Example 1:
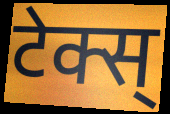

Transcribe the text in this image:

टेक्स्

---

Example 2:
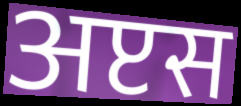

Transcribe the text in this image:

अप्टस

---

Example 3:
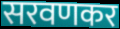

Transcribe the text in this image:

सरवणकर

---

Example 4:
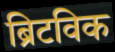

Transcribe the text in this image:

ब्रिटविक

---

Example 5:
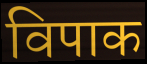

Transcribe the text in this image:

विपाक